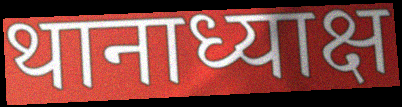
थानाध्याक्ष